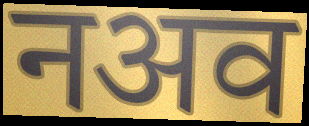
नअव